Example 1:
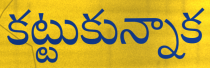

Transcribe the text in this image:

కట్టుకున్నాక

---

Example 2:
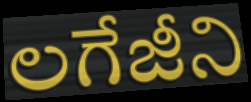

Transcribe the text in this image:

లగేజీని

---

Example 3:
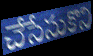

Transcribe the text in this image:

చేసేసుకొని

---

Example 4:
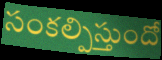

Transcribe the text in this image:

సంకల్పిస్తుందో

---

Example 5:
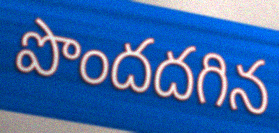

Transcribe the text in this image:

పొందదగిన